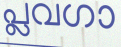
പ്ലവഗാ